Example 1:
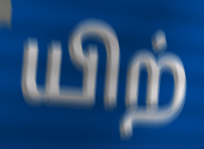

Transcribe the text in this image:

யிற்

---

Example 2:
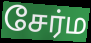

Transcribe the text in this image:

சேர்ம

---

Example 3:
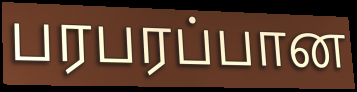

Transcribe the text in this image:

பரபரப்பான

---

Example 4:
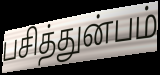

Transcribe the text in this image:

பசித்துன்பம்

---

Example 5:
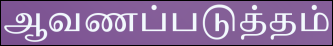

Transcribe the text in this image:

ஆவணப்படுத்தம்